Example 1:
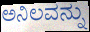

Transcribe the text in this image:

ಅನಿಲವನ್ನು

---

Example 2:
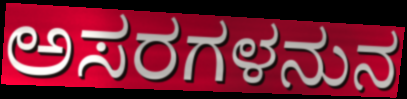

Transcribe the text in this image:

ಅಸರಗಳನುನ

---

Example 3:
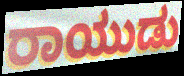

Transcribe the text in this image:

ರಾಯುಡು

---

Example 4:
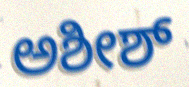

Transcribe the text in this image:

ಅಶೀಶ್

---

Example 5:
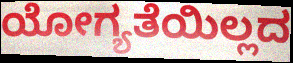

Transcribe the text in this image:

ಯೋಗ್ಯತೆಯಿಲ್ಲದ